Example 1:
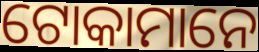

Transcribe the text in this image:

ଟୋକାମାନେ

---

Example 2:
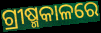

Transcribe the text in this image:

ଗ୍ରୀଷ୍ମକାଳରେ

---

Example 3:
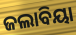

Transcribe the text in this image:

ଜଲାବିୟା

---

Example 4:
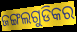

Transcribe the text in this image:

ଜଙ୍ଗଲଗୁଡିକର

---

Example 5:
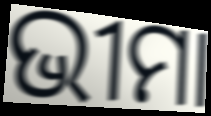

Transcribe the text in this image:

ଭୀମା